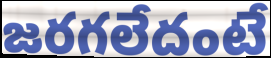
జరగలేదంటే